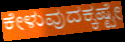
ಕೇಳುವುದಕ್ಕಷ್ಟೇ